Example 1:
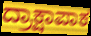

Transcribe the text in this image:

ದ್ರಾಕ್ಷಾಪಾಕ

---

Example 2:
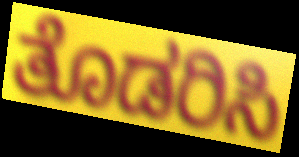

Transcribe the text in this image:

ತೊಡರಿಸಿ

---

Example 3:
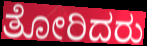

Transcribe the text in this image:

ತೋರಿದರು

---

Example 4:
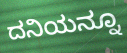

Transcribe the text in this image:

ದನಿಯನ್ನೂ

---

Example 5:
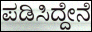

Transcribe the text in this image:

ಪಡಿಸಿದ್ದೇನೆ